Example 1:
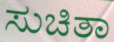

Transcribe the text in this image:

ಸುಚಿತಾ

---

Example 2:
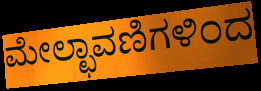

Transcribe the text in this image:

ಮೇಲ್ಛಾವಣಿಗಳಿಂದ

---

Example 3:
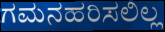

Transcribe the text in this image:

ಗಮನಹರಿಸಲಿಲ್ಲ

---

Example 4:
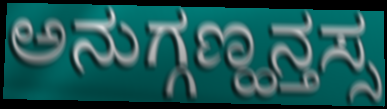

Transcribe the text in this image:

ಅನುಗ್ಗಣ್ಹನ್ತಸ್ಸ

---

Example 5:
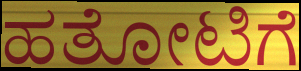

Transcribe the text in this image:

ಹತೋಟಿಗೆ